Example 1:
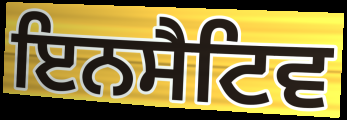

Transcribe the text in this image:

ਇਨਸੈਟਿਵ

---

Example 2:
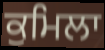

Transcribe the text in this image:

ਕੁਮਿਲਾ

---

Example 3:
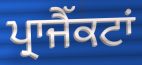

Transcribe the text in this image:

ਪ੍ਰਾਜੈੱਕਟਾਂ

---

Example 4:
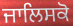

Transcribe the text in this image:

ਜਾਲਿਸਕੋ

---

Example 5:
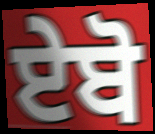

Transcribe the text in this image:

ਏਬੋ